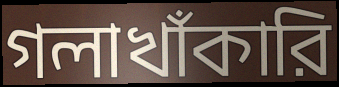
গলাখাঁকারি